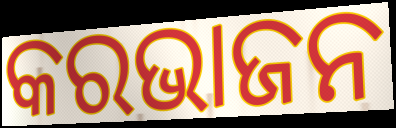
କରଭାଜନ